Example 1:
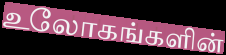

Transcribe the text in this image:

உலோகங்களின்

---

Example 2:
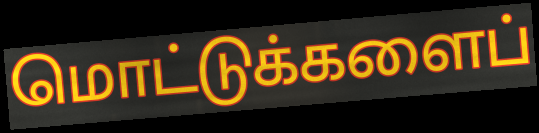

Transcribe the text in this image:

மொட்டுக்களைப்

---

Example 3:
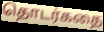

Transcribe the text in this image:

தொடர்கதை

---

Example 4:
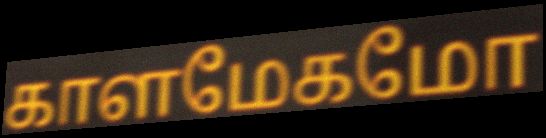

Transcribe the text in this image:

காளமேகமோ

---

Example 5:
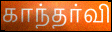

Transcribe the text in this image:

காந்தர்வி